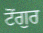
ਟੋਂਗੁਰ